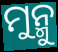
ମୁନ୍ମୁ